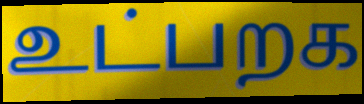
உட்பறக